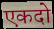
एकदो